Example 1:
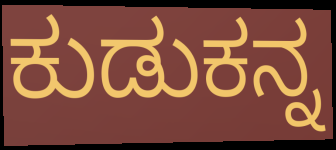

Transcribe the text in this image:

ಕುಡುಕನ್ನ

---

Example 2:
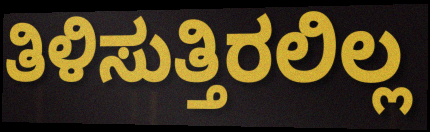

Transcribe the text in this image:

ತಿಳಿಸುತ್ತಿರಲಿಲ್ಲ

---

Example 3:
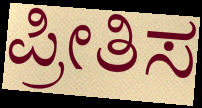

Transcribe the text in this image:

ಪ್ರೀತಿಸ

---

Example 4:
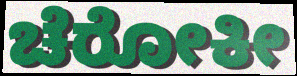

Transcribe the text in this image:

ಚೆರೋಕೀ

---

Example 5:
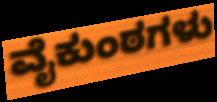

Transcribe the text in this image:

ವೈಕುಂಠಗಳು